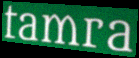
tamra